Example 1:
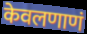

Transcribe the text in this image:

केवलणाणं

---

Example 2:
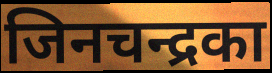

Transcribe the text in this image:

जिनचन्द्रका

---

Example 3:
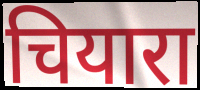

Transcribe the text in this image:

चियारा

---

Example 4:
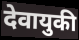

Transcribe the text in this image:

देवायुकी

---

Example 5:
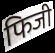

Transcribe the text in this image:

फिजी